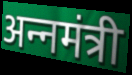
अन्नमंत्री